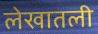
लेखातली